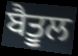
ਬੈਤੂਲ